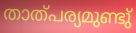
താത്പര്യമുണ്ടു്